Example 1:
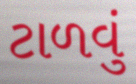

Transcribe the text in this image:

ટાળવું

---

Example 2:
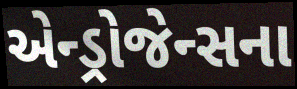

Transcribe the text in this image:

એન્ડ્રોજેન્સના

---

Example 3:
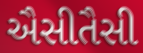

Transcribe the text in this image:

ઐસીતૈસી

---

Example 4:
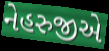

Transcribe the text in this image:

નેહરુજીએ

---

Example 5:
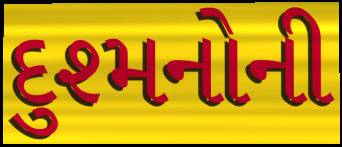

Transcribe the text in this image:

દુશ્મનોની